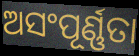
ଅସଂପୂର୍ଣ୍ଣତା